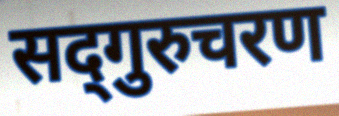
सद्‍गुरुचरण